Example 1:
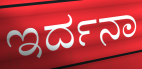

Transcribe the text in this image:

ಇರ್ದನಾ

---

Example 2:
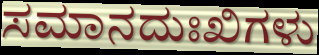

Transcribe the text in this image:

ಸಮಾನದುಃಖಿಗಳು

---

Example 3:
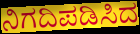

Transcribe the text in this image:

ನಿಗದಿಪಡಿಸಿದ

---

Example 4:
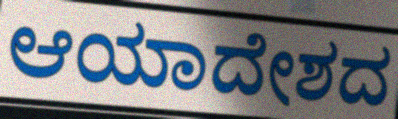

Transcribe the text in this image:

ಆಯಾದೇಶದ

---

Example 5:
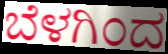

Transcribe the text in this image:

ಬೆಳಗಿಂದ